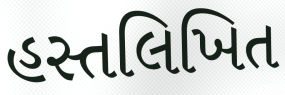
હસ્તલિખિત